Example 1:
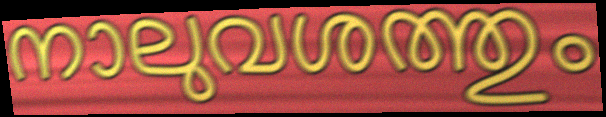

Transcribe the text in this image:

നാലുവശത്തും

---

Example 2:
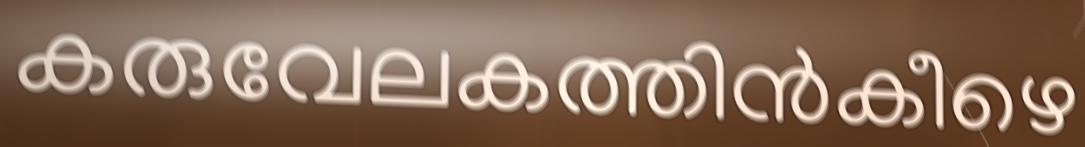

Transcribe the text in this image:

കരുവേലകത്തിൻകീഴെ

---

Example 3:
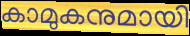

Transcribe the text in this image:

കാമുകനുമായി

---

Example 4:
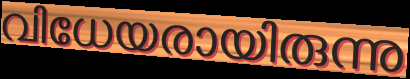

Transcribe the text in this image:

വിധേയരായിരുന്നു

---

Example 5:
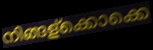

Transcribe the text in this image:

നിങ്ങള്ക്കൊക്കെ